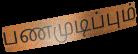
பணமுடிப்பும்